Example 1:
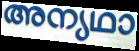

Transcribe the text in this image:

അന്യഥാ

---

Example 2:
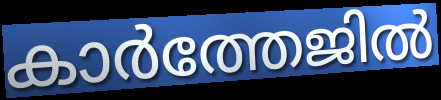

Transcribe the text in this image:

കാർത്തേജിൽ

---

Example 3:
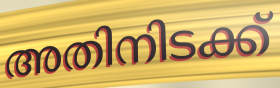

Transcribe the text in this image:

അതിനിടക്ക്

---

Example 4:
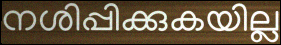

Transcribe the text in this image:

നശിപ്പിക്കുകയില്ല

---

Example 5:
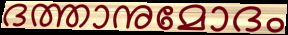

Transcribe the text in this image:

ദത്താനുമോദം